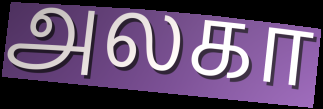
அலகா